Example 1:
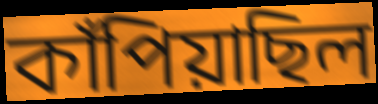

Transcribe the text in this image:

কাঁপিয়াছিল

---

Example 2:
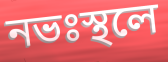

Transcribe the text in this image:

নভঃস্থলে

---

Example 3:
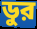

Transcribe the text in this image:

ডুর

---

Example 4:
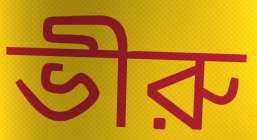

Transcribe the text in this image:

ভীরু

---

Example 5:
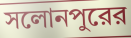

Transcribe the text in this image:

সলোনপুরের